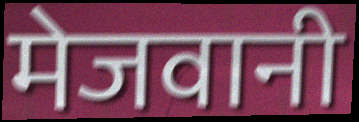
मेजवानी